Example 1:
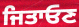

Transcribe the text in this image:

ਜਿਤਾਓਣ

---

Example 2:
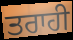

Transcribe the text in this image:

ਤਰਾਹੀ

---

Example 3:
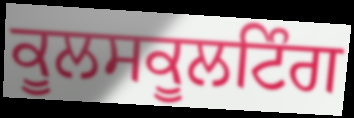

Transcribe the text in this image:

ਕੂਲਸਕੂਲਟਿੰਗ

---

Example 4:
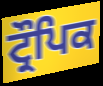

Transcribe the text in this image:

ਟ੍ਰੌਪਿਕ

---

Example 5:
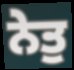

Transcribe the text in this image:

ਨੇਤੁ